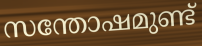
സന്തോഷമുണ്ട്